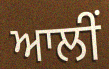
ਆਲੀਂ